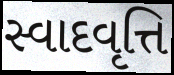
સ્વાદવૃત્તિ